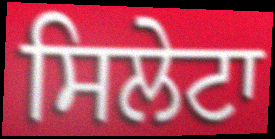
ਸਿਲੇਟਾ